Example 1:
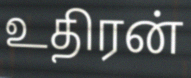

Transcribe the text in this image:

உதிரன்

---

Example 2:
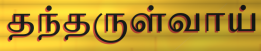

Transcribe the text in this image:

தந்தருள்வாய்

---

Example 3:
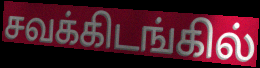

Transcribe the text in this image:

சவக்கிடங்கில்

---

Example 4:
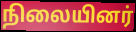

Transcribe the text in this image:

நிலையினர்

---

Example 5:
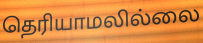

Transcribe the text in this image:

தெரியாமலில்லை